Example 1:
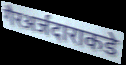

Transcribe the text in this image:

गैरअर्जदाराकडे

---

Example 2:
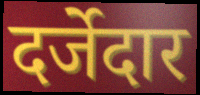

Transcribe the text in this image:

दर्जेदार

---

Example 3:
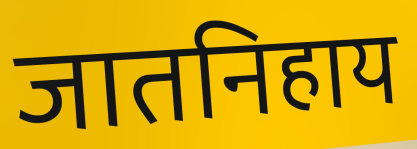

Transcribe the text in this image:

जातनिहाय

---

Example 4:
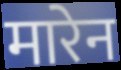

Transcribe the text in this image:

मारेन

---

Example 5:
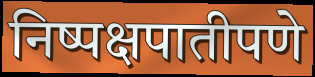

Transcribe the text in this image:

निष्पक्षपातीपणे